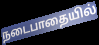
நடைபாதையில்